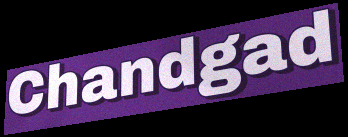
Chandgad